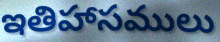
ఇతిహాసములు